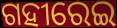
ଗହୀରେଇ